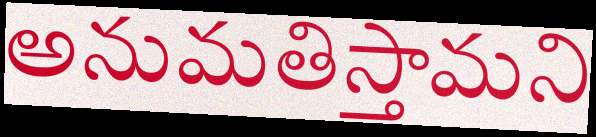
అనుమతిస్తామని